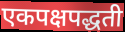
एकपक्षपद्धती